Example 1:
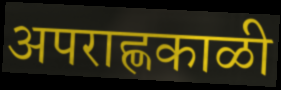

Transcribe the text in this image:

अपराह्णकाळी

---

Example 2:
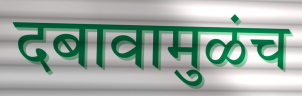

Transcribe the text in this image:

दबावामुळंच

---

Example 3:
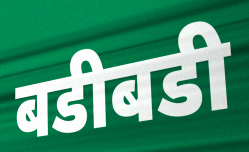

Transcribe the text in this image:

बडीबडी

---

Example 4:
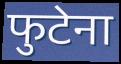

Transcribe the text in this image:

फुटेना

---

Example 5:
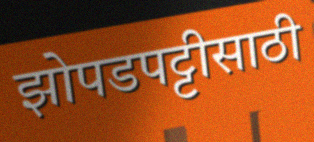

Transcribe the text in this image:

झोपडपट्टीसाठी